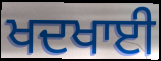
ਖਦਖਾਈ